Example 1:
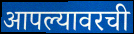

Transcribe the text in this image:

आपल्यावरची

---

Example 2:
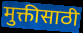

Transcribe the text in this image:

मुक्तीसाठी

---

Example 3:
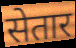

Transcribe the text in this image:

सेतार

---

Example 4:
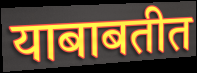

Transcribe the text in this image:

याबाबतीत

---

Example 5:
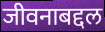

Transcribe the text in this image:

जीवनाबद्दल